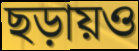
ছড়ায়ও